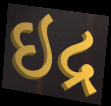
ઇદ્ર